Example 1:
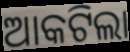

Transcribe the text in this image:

ଆକଟିଲା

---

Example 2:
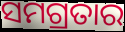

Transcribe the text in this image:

ସମଗ୍ରତାର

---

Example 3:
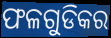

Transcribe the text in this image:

ଫଳଗୁଡିକର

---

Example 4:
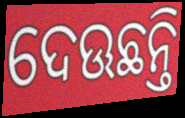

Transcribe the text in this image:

ଦେଊଛନ୍ତି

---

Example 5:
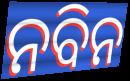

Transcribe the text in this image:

ନବିନ